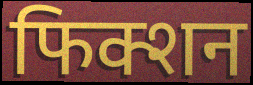
फिक्शन